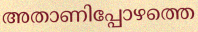
അതാണിപ്പോഴത്തെ